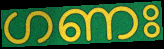
ഗണഃ